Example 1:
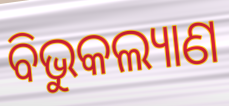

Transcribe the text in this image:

ବିଭୁକଲ୍ୟାଣ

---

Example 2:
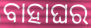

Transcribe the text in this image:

ବାହାଘର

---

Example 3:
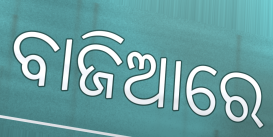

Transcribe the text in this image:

ବାଜିଆରେ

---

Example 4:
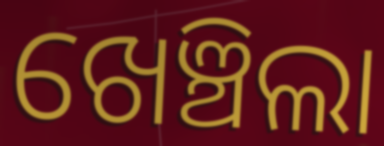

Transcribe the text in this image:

ଖେଞ୍ଚିଲା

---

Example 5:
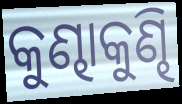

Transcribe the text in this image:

କୁଣ୍ଢାକୁଣ୍ଢି